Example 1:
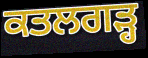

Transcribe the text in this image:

ਕਤਲਗੜ੍ਹ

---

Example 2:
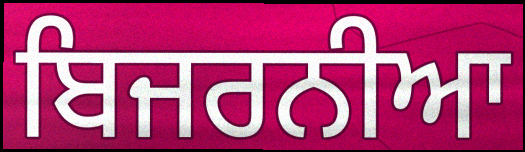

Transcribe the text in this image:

ਬਿਜਰਨੀਆ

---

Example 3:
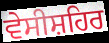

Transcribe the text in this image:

ਵੇਸੀਸ਼ਹਿਰ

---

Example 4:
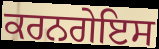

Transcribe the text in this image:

ਕਰਨਗੇਇਸ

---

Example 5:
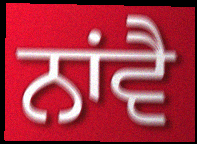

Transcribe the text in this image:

ਨਾਂਵੈ